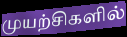
முயற்சிகளில்